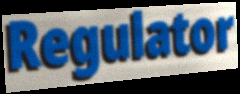
Regulator